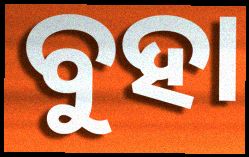
ବୁହା